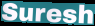
Suresh